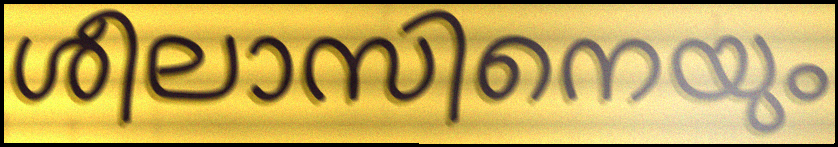
ശീലാസിനെയും